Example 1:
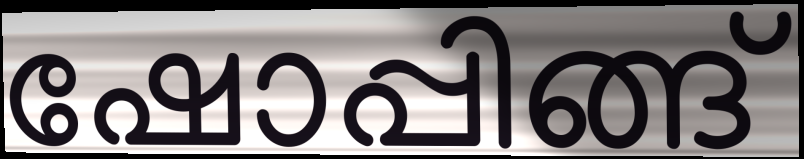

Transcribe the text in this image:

ഷോപ്പിങ്ങ്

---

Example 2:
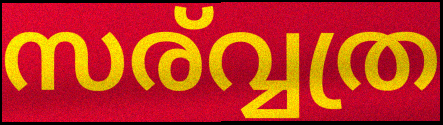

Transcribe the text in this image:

സര്വ്വത്ര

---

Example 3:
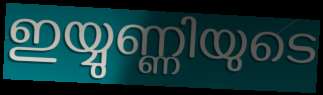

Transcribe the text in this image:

ഇയ്യുണ്ണിയുടെ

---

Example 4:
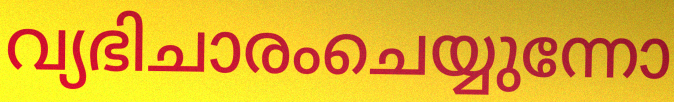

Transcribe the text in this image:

വ്യഭിചാരംചെയ്യുന്നോ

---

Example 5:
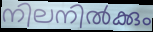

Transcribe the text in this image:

നിലനിൽക്കും